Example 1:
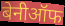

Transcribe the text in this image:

बेनीऑफ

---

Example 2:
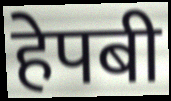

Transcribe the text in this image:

हेपबी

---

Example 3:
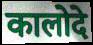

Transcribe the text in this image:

कालोदे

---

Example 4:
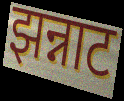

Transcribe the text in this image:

झन्नाट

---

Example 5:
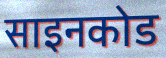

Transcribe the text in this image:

साइनकोड